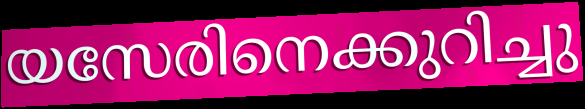
യസേരിനെക്കുറിച്ചു